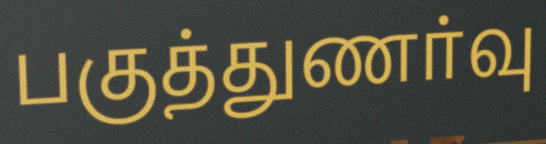
பகுத்துணர்வு